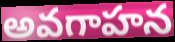
అవగాహన